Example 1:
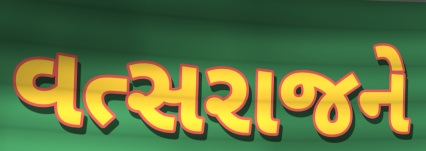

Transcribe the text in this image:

વત્સરાજને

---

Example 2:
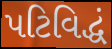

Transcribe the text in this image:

પટિવિદ્ધં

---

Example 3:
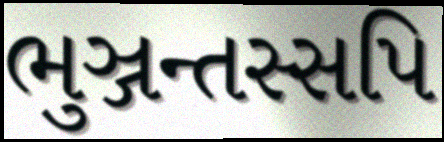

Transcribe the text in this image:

ભુઞ્જન્તસ્સપિ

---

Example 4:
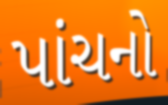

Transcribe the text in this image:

પાંચનો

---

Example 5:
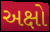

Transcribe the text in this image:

અક્ષો